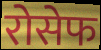
रोसेफ